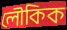
লৌকিক